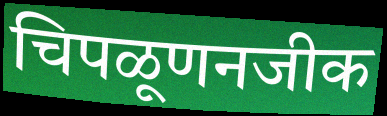
चिपळूणनजीक